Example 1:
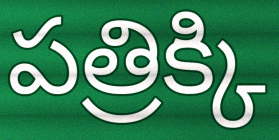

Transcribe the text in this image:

పత్రిక్కి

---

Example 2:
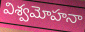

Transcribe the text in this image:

విశ్వమోహనా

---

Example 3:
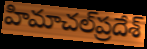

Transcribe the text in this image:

హిమాచల్‌ప్రదేశ్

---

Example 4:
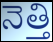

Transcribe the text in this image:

నెత్తి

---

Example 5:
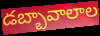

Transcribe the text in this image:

డబ్బావాలాల